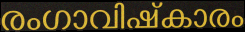
രംഗാവിഷ്‌കാരം